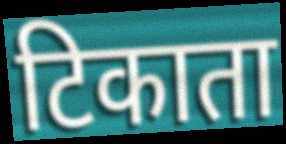
टिकाता